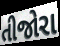
તીજોરા